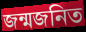
জন্মজনিত